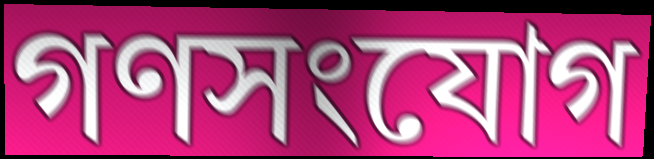
গণসংযোগ